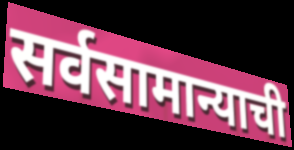
सर्वसामान्याची